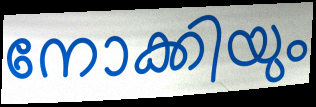
നോക്കിയും